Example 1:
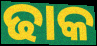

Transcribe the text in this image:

ଢାକ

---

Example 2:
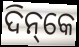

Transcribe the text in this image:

ଦିନ୍‌କେ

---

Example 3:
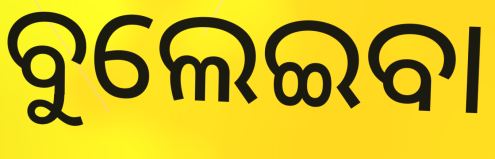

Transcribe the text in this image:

ବୁଲେଇବା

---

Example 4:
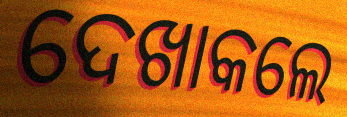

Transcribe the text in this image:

ଦେଖାକଲେ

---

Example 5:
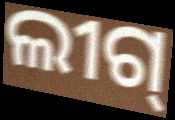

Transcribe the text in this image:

ଲୀଗ୍